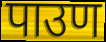
पाउण